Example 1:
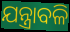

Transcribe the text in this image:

ଯନ୍ତ୍ରାବଳି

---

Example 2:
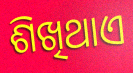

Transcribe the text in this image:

ଶିଖିଥାଏ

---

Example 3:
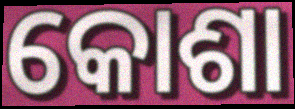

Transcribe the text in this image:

କୋଶା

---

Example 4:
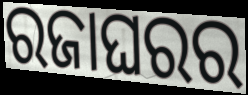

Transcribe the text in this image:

ରଜାଘରର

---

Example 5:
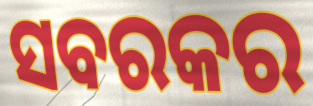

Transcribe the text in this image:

ସବରକର